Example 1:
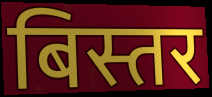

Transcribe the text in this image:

बिस्तर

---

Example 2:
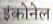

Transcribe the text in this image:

इंकोनेल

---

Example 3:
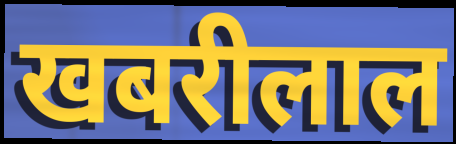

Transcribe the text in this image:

खबरीलाल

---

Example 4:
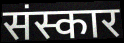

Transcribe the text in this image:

संस्कार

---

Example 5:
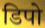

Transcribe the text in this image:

डिपो